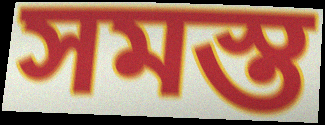
সমস্ত